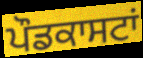
ਪੌਡਕਾਸਟਾਂ